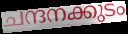
ചന്ദനക്കുടം